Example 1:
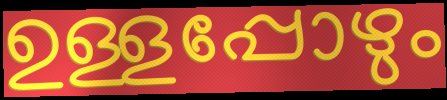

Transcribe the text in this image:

ഉള്ളപ്പോഴും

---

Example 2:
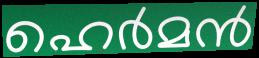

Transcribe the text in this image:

ഹെർമൻ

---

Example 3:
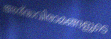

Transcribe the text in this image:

അര്ദ്ധവിരാമങ്ങളുടെ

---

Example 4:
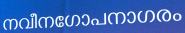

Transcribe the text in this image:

നവീനഗോപനാഗരം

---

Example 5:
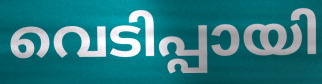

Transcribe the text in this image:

വെടിപ്പായി